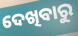
ଦେଖିବାରୁ